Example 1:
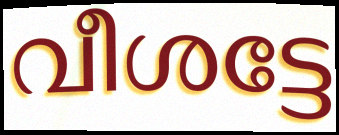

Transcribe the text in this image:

വീശട്ടേ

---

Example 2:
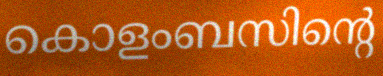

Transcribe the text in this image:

കൊളംബസിന്റെ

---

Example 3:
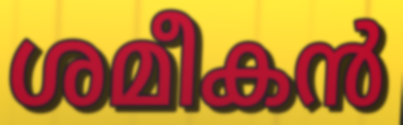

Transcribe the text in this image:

ശമീകൻ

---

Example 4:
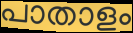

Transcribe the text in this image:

പാതാളം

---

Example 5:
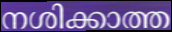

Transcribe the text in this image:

നശിക്കാത്ത